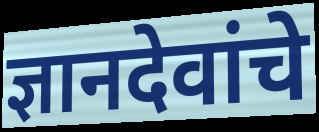
ज्ञानदेवांचे